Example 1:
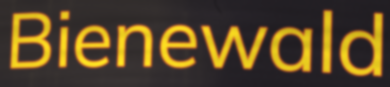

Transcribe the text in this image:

Bienewald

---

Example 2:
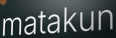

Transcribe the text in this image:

matakun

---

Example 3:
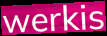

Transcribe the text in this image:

werkis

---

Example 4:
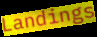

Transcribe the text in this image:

Landings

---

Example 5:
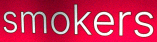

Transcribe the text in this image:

smokers